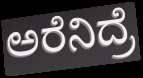
ಅರೆನಿದ್ರೆ